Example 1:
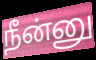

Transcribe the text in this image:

நீன்னு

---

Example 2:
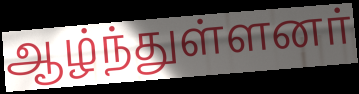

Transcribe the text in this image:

ஆழ்ந்துள்ளனர்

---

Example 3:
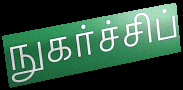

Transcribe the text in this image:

நுகர்ச்சிப்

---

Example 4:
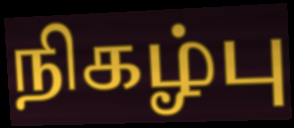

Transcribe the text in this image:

நிகழ்பு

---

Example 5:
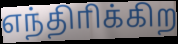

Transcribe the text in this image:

எந்திரிக்கிற